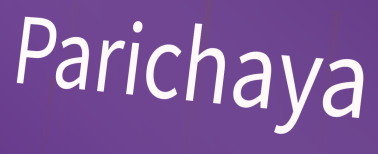
Parichaya